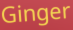
Ginger